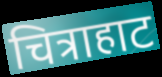
चित्राहाट